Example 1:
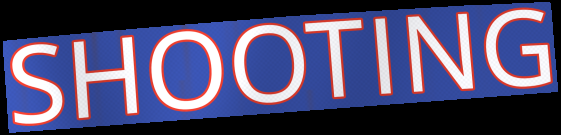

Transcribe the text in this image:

SHOOTING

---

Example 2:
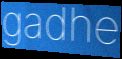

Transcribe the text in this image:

gadhe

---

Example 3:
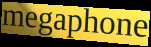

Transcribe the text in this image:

megaphone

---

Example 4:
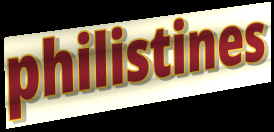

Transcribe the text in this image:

philistines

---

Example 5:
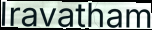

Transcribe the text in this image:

Iravatham